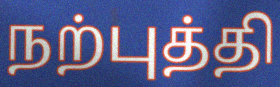
நற்புத்தி